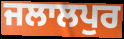
ਜਲਾਲਪੁਰ